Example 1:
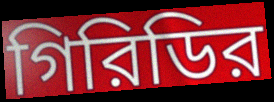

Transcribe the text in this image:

গিরিডির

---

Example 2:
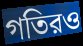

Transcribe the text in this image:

গতিরও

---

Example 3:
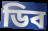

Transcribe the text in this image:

ডিব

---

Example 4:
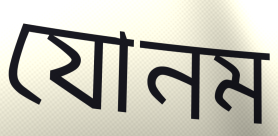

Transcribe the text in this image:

যোনম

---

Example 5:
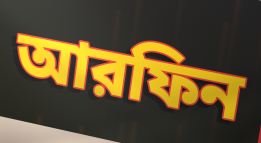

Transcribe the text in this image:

আরফিন